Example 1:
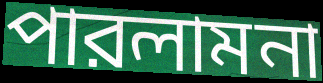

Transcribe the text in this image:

পারলামনা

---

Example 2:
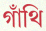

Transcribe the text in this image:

গাঁথি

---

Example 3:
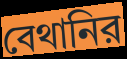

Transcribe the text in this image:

বেথানির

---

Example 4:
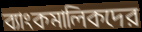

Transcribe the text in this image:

ব্যাংকমালিকদের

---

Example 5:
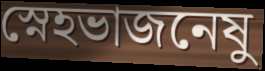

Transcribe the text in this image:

স্নেহভাজনেষু